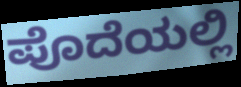
ಪೊದೆಯಲ್ಲಿ